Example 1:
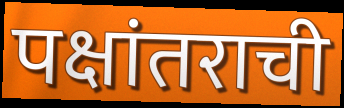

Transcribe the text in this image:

पक्षांतराची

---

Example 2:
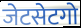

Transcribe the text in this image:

जेटसेटगो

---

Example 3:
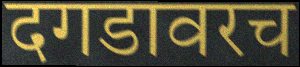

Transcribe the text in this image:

दगडावरच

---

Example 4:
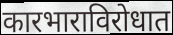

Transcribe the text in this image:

कारभाराविरोधात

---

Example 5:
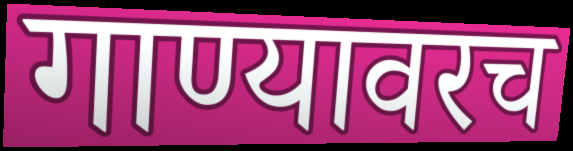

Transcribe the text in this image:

गाण्यावरच